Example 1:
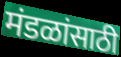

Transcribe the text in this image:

मंडळांसाठी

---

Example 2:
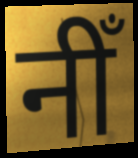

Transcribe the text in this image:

नीँ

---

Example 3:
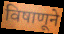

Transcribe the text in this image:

विषाणूने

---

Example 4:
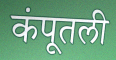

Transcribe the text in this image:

कंपूतली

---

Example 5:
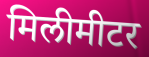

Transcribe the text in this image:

मिलीमीटर